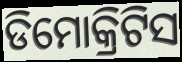
ଡିମୋକ୍ରିଟିସ